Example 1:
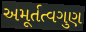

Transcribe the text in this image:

અમૂર્તત્વગુણ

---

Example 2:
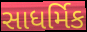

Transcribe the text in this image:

સાધર્મિક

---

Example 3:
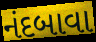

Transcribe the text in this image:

નંદબાવા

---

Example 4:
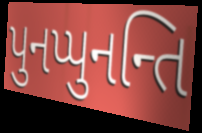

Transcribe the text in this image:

પુનપ્પુનન્તિ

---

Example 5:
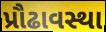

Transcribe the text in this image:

પ્રૌઢાવસ્થા